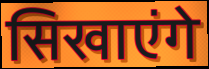
सिखाएंगे